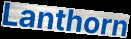
Lanthorn